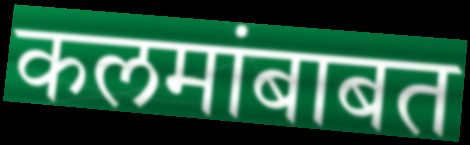
कलमांबाबत